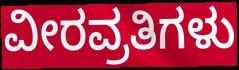
ವೀರವ್ರತಿಗಳು